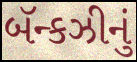
બૅન્કઝીનું